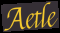
Aetle